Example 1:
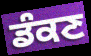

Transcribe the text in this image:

ਡੰਕਣ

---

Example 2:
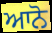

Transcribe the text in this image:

ਆਨੋ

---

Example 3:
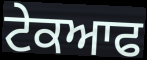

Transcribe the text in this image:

ਟੇਕਆਫ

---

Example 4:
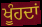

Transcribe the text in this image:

ਖੂੰਹਦਾਂ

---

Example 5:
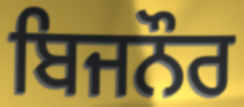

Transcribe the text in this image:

ਬਿਜਨੌਰ